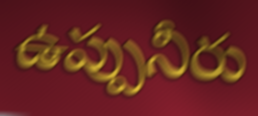
ఉప్పునీరు